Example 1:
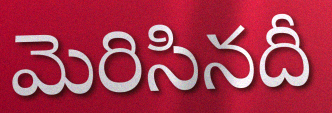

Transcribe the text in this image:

మెరిసినదీ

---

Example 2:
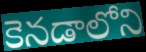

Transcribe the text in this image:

కెనడాలోని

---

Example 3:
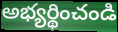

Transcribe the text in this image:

అభ్యర్థించండి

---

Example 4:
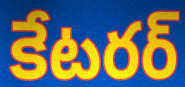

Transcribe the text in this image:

కేటరర్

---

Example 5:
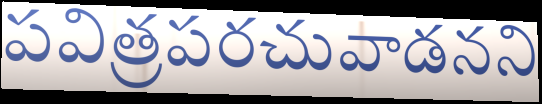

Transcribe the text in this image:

పవిత్రపరచువాడనని